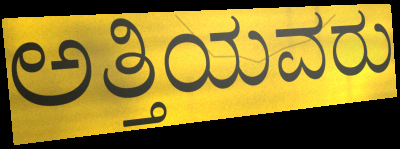
ಅತ್ತಿಯವರು